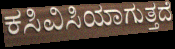
ಕಸಿವಿಸಿಯಾಗುತ್ತದೆ